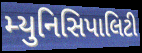
મ્યુનિસિપાલિટી